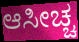
ಆಸೀಚ್ಚ